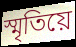
স্মৃতিয়ে